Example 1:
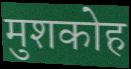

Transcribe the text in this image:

मुशकोह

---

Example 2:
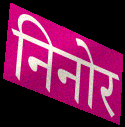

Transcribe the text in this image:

निनोर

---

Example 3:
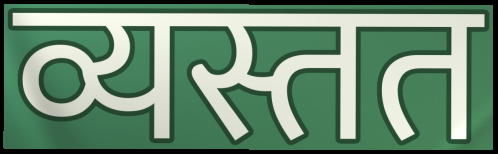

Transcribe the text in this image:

व्यस्तत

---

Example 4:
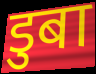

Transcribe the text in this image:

डुबा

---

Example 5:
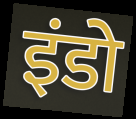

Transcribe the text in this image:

इंडो